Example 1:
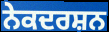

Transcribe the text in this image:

ਨੇਕਦਰਸ਼ਨ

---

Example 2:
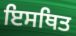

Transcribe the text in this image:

ਇਸਥਿਤ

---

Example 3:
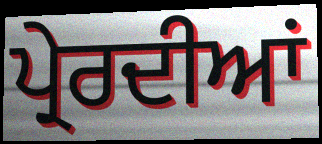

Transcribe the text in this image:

ਪ੍ਰੇਰਦੀਆਂ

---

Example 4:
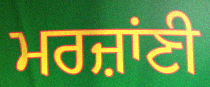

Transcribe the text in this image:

ਮਰਜ਼ਾਂਣੀ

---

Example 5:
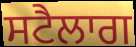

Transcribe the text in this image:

ਸਟੈਲਾਗ